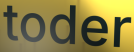
toder